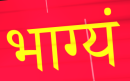
भाग्यं